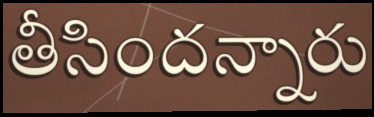
తీసిందన్నారు